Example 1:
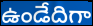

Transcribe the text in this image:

ఉండేదిగా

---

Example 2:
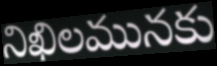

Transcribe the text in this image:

నిఖిలమునకు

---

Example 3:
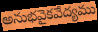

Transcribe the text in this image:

అనుభవైకవేద్యము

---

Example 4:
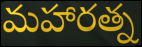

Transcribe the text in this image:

మహారత్న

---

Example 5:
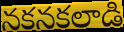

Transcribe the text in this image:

నకనకలాడి